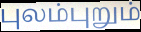
புலம்புறும்